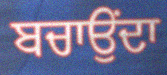
ਬਚਾਉਂਦਾ